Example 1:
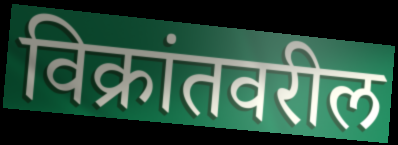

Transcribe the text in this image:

विक्रांतवरील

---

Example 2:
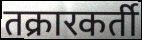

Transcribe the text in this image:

तक्रारकर्ती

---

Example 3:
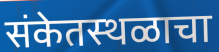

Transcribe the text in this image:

संकेतस्थळाचा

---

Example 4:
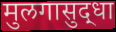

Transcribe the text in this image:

मुलगासुद्धा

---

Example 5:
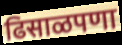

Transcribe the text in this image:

ढिसाळपणा